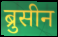
ब्रुसीन